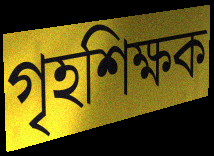
গৃহশিক্ষক